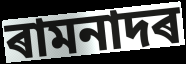
ৰামনাদৰ